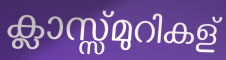
ക്ലാസ്സ്മുറികള്